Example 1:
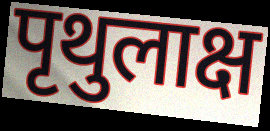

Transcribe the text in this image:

पृथुलाक्ष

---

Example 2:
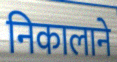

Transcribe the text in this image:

निकालाने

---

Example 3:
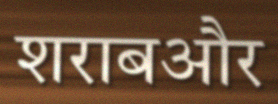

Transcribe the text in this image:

शराबऔर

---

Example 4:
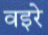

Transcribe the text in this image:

वइरे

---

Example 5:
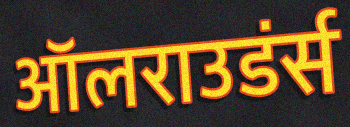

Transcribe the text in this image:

ऑलराउडंर्स